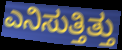
ಎನಿಸುತ್ತಿತ್ತು